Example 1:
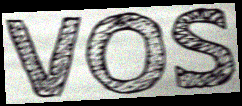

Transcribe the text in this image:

VOS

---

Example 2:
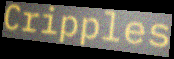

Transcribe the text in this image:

Cripples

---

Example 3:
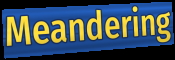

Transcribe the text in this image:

Meandering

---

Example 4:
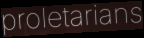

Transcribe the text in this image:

proletarians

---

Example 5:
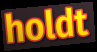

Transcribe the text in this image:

holdt